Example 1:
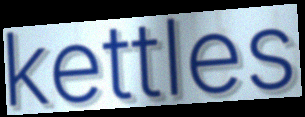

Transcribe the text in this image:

kettles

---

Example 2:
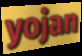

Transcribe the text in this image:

yojan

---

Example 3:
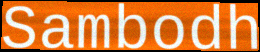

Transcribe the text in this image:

Sambodh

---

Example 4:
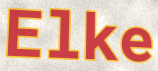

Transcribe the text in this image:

Elke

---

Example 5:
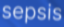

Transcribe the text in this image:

sepsis